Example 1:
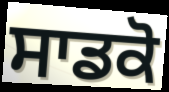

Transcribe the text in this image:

ਸਾਡਕੋ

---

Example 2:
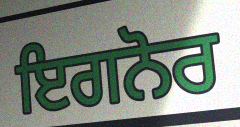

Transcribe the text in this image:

ਇਗਨੋਰ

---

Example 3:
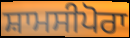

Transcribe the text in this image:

ਸ਼ਾਮਸੀਪੋਰਾ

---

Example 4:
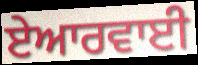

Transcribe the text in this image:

ਏਆਰਵਾਈ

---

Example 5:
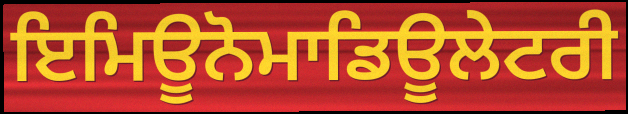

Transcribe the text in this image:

ਇਮਿਊਨੋਮਾਡਿਊਲੇਟਰੀ